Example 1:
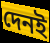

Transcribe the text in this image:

দেনই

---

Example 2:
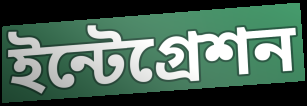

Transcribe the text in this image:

ইন্টেগ্রেশন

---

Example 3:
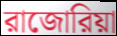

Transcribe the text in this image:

রাজোরিয়া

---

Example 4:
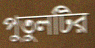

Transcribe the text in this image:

পুতুলটির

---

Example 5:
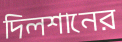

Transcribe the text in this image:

দিলশানের